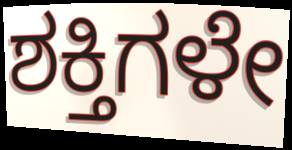
ಶಕ್ತಿಗಳೇ